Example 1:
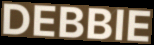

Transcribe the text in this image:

DEBBIE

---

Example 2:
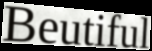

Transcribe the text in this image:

Beutiful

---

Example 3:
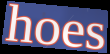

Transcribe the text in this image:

hoes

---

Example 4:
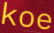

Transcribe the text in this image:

koe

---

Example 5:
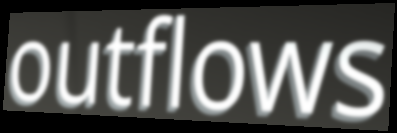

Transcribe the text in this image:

outflows